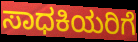
ಸಾಧಕಿಯರಿಗೆ